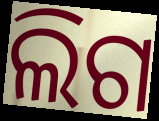
ଲିଗ